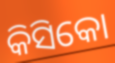
କିସିକୋ